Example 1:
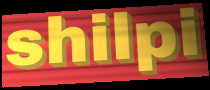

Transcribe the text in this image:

shilpi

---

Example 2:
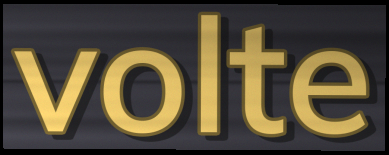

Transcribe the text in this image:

volte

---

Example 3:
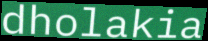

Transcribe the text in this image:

dholakia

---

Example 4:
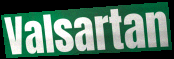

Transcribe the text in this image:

Valsartan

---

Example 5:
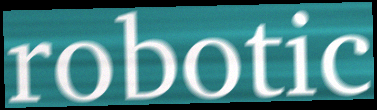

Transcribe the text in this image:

robotic